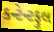
કન્ટેન્ટફુલ